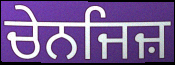
ਚੇਨਜਿਜ਼